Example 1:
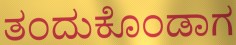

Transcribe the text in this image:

ತಂದುಕೊಂಡಾಗ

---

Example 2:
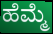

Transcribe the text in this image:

ಹೆಮ್ಮೆ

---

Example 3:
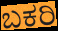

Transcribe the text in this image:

ಬಕರಿ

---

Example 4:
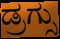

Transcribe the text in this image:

ಡ್ರಗ್ಸು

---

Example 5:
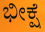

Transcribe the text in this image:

ಭೀಕ್ಷೆ